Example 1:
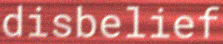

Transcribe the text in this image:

disbelief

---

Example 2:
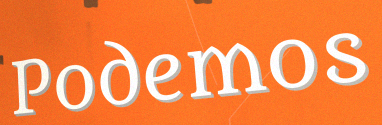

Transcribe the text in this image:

Podemos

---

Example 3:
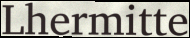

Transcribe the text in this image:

Lhermitte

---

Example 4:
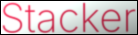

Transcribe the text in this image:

Stacker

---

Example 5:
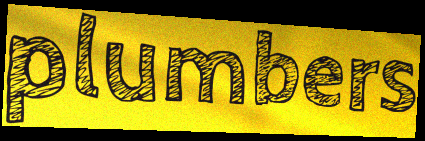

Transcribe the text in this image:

plumbers